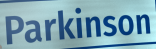
Parkinson